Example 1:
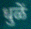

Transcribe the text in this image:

धुळें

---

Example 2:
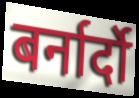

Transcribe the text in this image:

बर्नार्दो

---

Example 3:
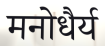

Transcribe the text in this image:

मनोधैर्य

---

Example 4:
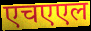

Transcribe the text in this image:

एचएएल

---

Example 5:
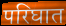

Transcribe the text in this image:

परिघात